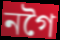
নগৈ